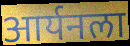
आर्यनला